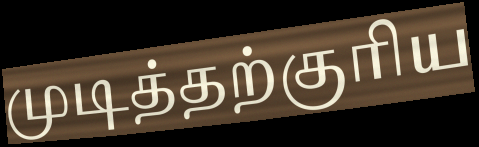
முடித்தற்குரிய